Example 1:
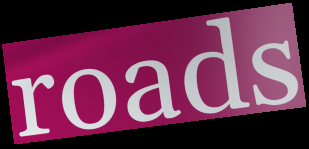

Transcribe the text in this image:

roads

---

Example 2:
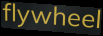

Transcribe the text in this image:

flywheel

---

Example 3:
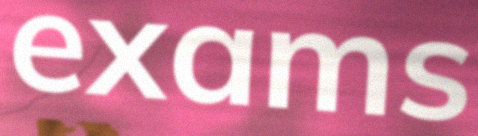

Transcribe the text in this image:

exams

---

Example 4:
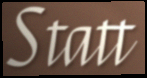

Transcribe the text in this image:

Statt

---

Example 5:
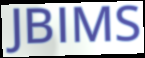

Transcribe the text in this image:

JBIMS